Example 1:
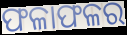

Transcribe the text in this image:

ଫଳାଫଳର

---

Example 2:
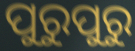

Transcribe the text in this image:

ପୁରୁପୁରୁ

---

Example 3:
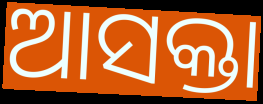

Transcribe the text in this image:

ଆସକ୍ତା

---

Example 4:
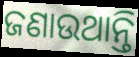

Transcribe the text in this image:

ଜଣାଉଥାନ୍ତି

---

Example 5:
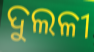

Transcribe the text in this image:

ଦୁଲଳୀ